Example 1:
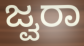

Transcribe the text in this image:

ಜ್ವರಾ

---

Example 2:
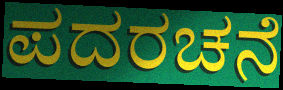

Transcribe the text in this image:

ಪದರಚನೆ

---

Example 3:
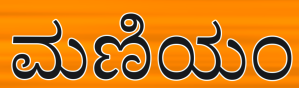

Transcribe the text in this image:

ಮಣಿಯಂ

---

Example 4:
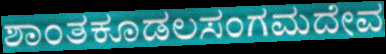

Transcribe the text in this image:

ಶಾಂತಕೂಡಲಸಂಗಮದೇವ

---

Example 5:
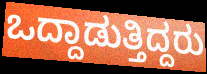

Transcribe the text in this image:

ಒದ್ದಾಡುತ್ತಿದ್ದರು